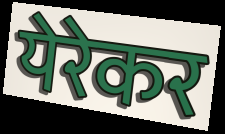
येरेकर